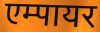
एम्पायर